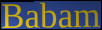
Babam